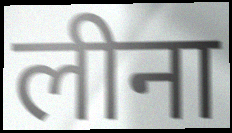
लीना